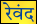
रेवंद